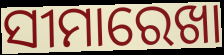
ସୀମାରେଖା